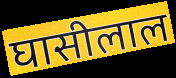
घासीलाल